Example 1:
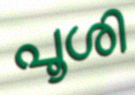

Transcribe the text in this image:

പൂശി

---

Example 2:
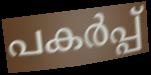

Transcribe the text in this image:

പകർപ്പ്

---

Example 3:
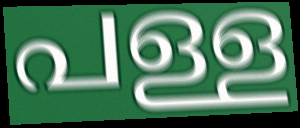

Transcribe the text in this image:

പള്ള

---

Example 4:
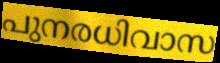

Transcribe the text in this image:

പുനരധിവാസ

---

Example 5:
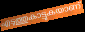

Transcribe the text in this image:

എടുത്തുകാട്ടുകയാണ്